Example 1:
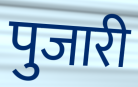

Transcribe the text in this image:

पुजारी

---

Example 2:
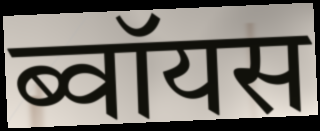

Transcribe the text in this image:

ब्वॉयस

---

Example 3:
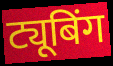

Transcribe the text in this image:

ट्यूबिंग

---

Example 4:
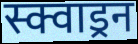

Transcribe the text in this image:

स्क्वाड्रन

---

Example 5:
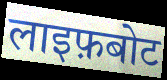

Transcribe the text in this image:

लाइफ़बोट